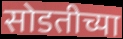
सोडतीच्या